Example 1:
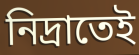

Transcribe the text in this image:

নিদ্রাতেই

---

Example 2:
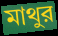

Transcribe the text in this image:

মাথুর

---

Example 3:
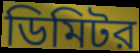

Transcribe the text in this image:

ডিমিটর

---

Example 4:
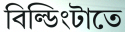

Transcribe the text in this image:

বিল্ডিংটাতে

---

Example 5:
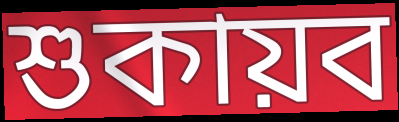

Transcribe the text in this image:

শুকায়ব